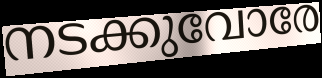
നടക്കുവോരേ